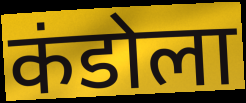
कंडोला